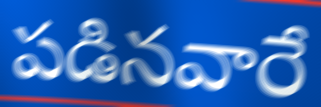
పడినవారే